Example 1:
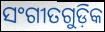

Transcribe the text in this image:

ସଂଗୀତଗୁଡ଼ିକ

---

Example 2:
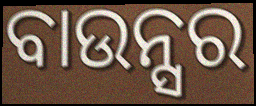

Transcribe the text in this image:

ବାଉନ୍ସର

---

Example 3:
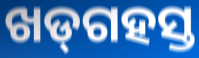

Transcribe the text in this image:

ଖଡ୍‌ଗହସ୍ତ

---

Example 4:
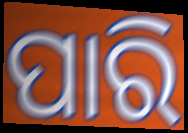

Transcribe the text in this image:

ପାରି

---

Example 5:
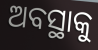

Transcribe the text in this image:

ଅବସ୍ଥାକୁ